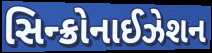
સિન્ક્રોનાઈઝેશન